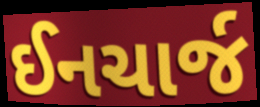
ઈનચાર્જ